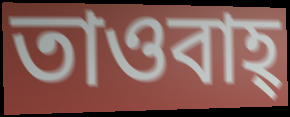
তাওবাহ্